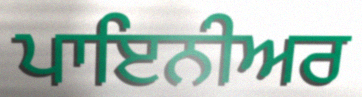
ਪਾਇਨੀਅਰ